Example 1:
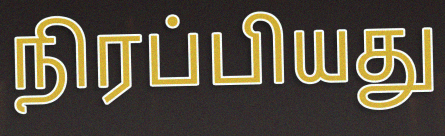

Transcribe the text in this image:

நிரப்பியது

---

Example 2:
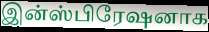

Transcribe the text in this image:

இன்ஸ்பிரேஷனாக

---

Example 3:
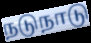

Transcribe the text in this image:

நடுநாடு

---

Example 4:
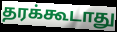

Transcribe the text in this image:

தரக்கூடாது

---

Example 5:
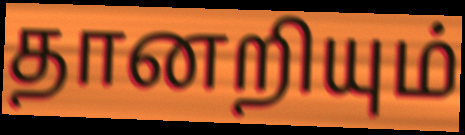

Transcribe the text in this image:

தானறியும்